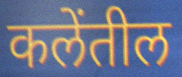
कलेंतील